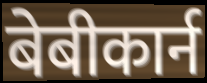
बेबीकार्न